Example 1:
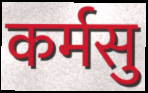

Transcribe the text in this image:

कर्मसु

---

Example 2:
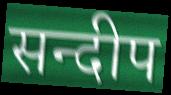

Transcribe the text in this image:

सन्दीप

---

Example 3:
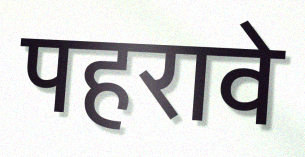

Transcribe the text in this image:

पहरावे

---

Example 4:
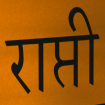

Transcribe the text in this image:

राप्ती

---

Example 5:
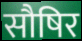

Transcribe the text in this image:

सौषिर